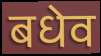
बधेव